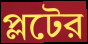
প্লটের